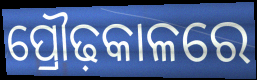
ପ୍ରୌଢ଼କାଳରେ